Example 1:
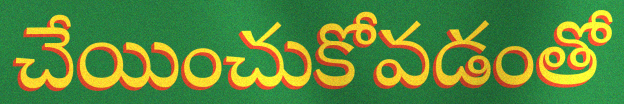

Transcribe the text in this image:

చేయించుకోవడంతో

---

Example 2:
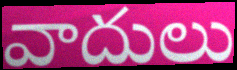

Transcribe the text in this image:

వాదులు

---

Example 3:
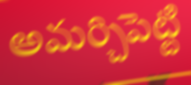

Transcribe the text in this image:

అమర్చిపెట్టి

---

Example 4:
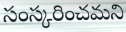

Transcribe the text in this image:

సంస్కరించమని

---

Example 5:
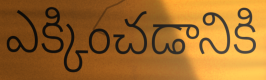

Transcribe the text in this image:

ఎక్కించడానికి